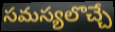
సమస్యలొచ్చే